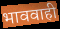
भाववाही